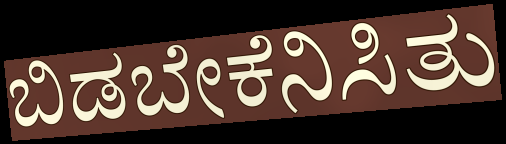
ಬಿಡಬೇಕೆನಿಸಿತು